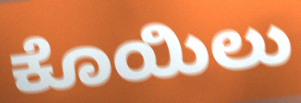
ಕೊಯಿಲು